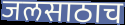
जलसाठाच